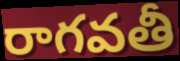
రాగవతీ